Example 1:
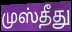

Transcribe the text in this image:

முஸ்தீது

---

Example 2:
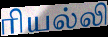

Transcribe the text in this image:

ரியல்லி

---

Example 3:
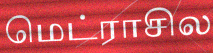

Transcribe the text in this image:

மெட்ராசில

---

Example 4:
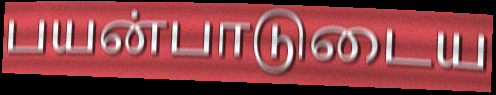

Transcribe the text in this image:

பயன்பாடுடைய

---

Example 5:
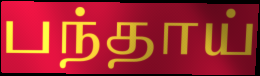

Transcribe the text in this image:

பந்தாய்